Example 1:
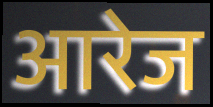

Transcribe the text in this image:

आरेज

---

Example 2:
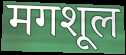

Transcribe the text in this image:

मगशूल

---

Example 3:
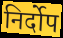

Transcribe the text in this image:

निर्दोप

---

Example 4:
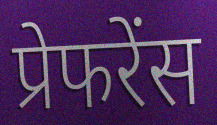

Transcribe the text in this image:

प्रेफरेंस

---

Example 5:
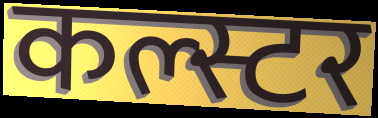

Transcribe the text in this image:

कल्स्टर